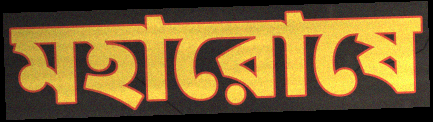
মহারোষে